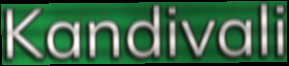
Kandivali